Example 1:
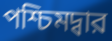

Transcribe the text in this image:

পশ্চিমদ্বার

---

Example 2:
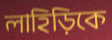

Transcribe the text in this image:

লাহিড়িকে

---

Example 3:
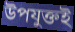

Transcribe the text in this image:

উপযুক্তই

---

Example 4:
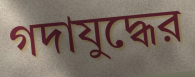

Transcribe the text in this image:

গদাযুদ্ধের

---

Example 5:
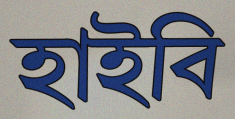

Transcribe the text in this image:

হাইবি